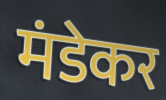
मंडेकर